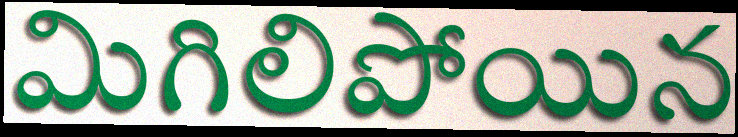
మిగిలిపోయిన